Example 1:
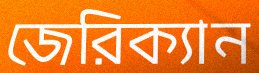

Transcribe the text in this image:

জেরিক্যান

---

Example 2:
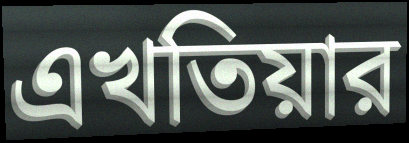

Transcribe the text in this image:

এখতিয়ার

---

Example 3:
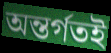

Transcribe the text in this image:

অন্তর্গতই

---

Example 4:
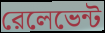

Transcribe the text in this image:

রেলেভেন্ট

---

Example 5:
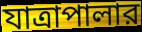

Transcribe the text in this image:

যাত্রাপালার